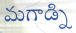
మగాడ్ని